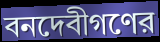
বনদেবীগণের